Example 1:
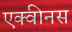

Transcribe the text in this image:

एक्वीनस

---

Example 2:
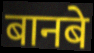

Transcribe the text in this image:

बानबे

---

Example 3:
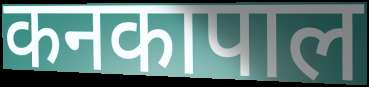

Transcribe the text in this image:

कनकापाल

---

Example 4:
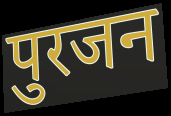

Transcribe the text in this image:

पुरजन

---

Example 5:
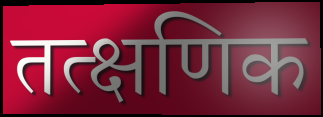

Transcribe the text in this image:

तत्क्षणिक